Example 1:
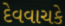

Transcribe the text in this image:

દેવવાચકે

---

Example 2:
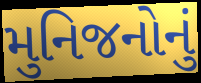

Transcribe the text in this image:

મુનિજનોનું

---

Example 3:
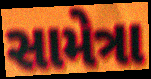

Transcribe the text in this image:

સામેત્રા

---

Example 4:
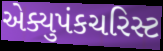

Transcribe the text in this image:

એક્યુપંકચરિસ્ટ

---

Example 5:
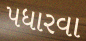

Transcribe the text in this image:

પધારવા